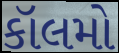
કૉલમો